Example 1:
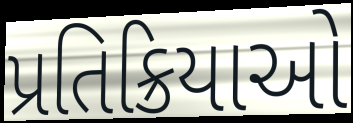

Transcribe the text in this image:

પ્રતિક્રિયાઓ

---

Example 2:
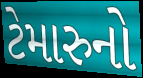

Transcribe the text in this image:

ટેમારુનો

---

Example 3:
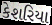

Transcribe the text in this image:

કેશરિયા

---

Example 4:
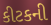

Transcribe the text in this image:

કીટકની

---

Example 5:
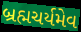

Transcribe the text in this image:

બ્રહ્મચર્યમેવ